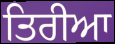
ਤਿਰੀਆ